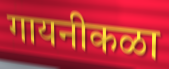
गायनीकळा